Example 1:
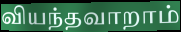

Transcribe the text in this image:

வியந்தவாறாம்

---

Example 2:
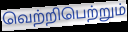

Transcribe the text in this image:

வெற்றிபெற்றும்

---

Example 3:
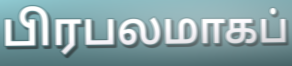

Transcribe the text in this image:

பிரபலமாகப்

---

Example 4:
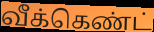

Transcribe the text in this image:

வீக்கெண்ட்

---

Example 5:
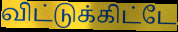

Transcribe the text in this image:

விட்டுக்கிட்டே